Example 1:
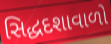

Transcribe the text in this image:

સિદ્ધદશાવાળો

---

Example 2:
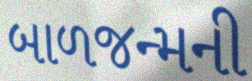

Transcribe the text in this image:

બાળજન્મની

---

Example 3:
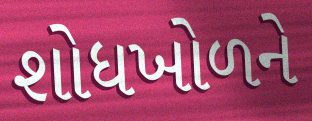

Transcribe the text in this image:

શોધખોળને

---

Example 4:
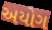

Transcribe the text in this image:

અયોગ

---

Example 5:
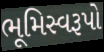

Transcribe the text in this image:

ભૂમિસ્વરૂપો